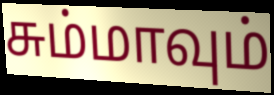
சும்மாவும்